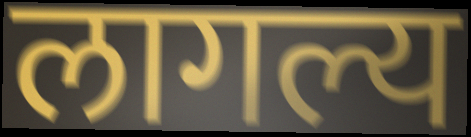
लागल्य